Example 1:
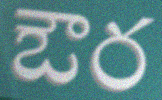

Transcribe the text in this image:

ఔర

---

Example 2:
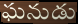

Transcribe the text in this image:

ఘనుడు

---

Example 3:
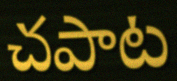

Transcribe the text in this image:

చపాట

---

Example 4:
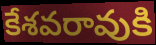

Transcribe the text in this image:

కేశవరావుకి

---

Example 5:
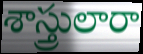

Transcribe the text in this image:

శాస్త్రులారా